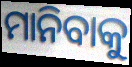
ମାନିବାକୁ